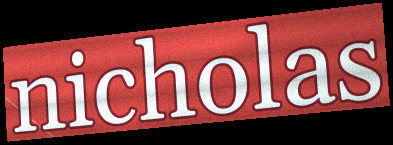
nicholas